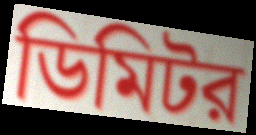
ডিমিটর